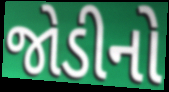
જોડીનો